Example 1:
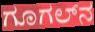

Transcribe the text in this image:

ಗೂಗಲ್‌ನ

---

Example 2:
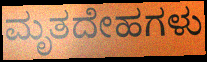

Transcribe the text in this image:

ಮೃತದೇಹಗಳು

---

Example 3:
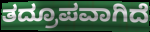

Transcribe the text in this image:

ತದ್ರೂಪವಾಗಿದೆ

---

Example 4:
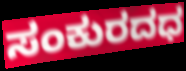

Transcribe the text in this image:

ಸಂಕುರದಧ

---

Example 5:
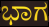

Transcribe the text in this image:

ಭಾಗ